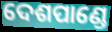
ଦେଶପାଣ୍ଡେ